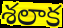
శలాక